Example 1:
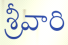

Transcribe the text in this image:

శ్రీవారి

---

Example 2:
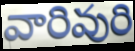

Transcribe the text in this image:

వారివురి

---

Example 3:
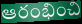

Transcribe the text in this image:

ఆరంభించి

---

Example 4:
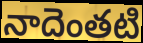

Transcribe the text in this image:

నాదెంతటి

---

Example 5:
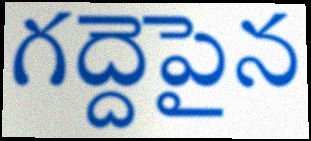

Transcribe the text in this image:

గద్దెపైన